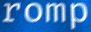
romp